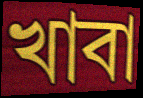
খাবা